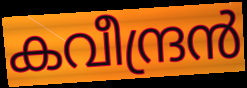
കവീന്ദ്രൻ